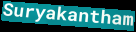
Suryakantham